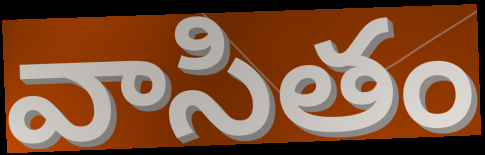
వాసితం